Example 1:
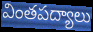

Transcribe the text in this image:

వింతపద్యాలు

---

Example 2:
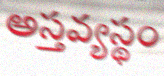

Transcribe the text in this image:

అస్తవ్యస్థం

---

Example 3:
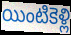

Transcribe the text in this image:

యింటికెళ్లి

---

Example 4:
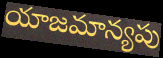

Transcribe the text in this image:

యాజమాన్యపు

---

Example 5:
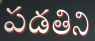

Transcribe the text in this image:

పడతిని